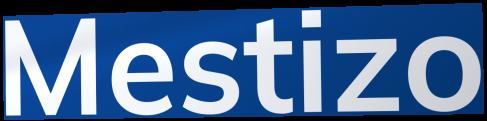
Mestizo